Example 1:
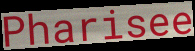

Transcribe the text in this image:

Pharisee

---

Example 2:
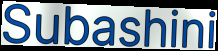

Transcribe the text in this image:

Subashini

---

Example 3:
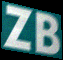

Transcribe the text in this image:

ZB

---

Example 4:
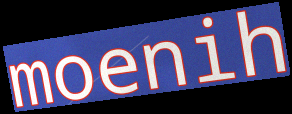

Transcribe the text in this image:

moenih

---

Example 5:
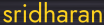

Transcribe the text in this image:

sridharan